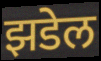
झडेल